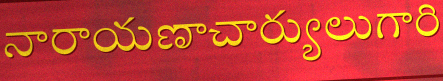
నారాయణాచార్యులుగారి